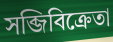
সব্জিবিক্রেতা